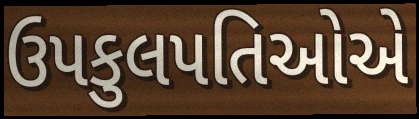
ઉપકુલપતિઓએ